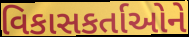
વિકાસકર્તાઓને